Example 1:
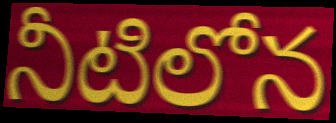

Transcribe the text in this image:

నీటిలోన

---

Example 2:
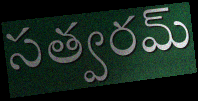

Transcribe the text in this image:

సత్వరమ్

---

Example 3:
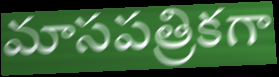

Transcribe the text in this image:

మాసపత్రికగా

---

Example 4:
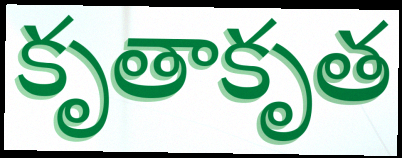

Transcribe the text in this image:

కృతాకృత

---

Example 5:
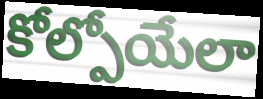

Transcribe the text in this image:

కోల్పోయేలా